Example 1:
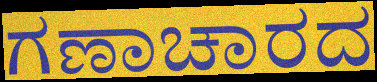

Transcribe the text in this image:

ಗಣಾಚಾರದ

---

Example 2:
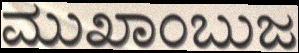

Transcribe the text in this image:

ಮುಖಾಂಬುಜ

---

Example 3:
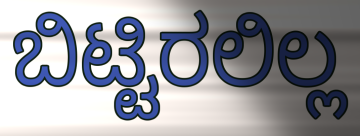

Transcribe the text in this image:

ಬಿಟ್ಟಿರಲಿಲ್ಲ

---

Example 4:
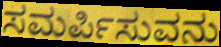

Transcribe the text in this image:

ಸಮರ್ಪಿಸುವನು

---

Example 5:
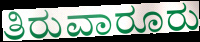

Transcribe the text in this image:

ತಿರುವಾರೂರು